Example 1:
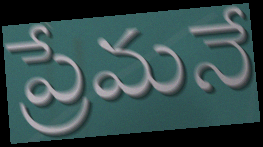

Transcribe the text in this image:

ప్రేమనే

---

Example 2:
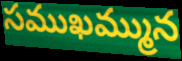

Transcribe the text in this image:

సముఖమ్మున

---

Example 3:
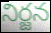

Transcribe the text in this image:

నిర్జన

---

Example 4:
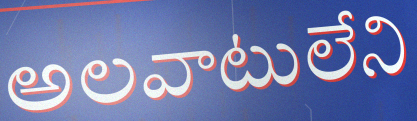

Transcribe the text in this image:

అలవాటులేని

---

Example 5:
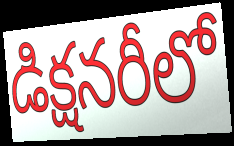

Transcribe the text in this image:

డిక్షనరీలో